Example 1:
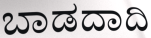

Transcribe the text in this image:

ಬಾಡದಾದಿ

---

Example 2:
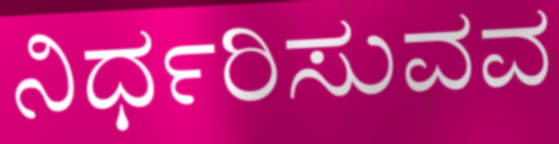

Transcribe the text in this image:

ನಿರ್ಧರಿಸುವವ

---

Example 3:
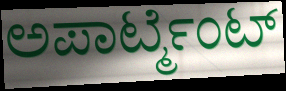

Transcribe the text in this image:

ಅಪಾರ್ಟ್ಮೆಂಟ್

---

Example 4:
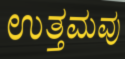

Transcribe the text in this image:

ಉತ್ತಮವು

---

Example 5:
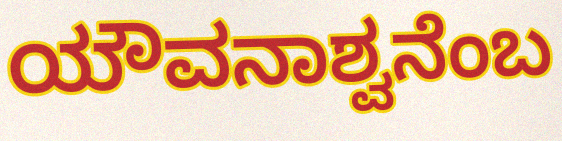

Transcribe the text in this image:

ಯೌವನಾಶ್ವನೆಂಬ